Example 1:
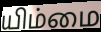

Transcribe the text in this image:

யிம்மை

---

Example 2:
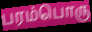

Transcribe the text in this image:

பரம்பொரு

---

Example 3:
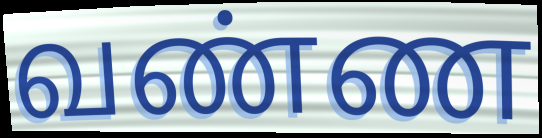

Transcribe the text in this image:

வண்ண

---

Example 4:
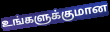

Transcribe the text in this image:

உங்களுக்குமான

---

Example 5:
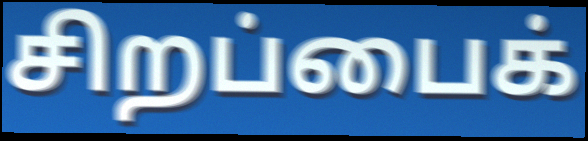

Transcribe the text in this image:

சிறப்பைக்